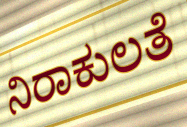
ನಿರಾಕುಲತೆ